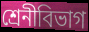
শ্রেনীবিভাগ